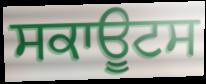
ਸਕਾਊਟਸ